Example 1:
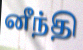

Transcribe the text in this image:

னீந்தி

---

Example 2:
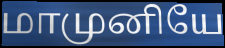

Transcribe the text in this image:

மாமுனியே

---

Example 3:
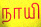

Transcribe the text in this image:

நாயி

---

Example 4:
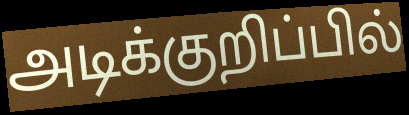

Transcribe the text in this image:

அடிக்குறிப்பில்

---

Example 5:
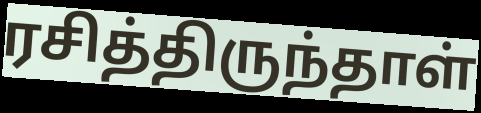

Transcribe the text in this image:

ரசித்திருந்தாள்